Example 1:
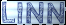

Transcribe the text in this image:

LINN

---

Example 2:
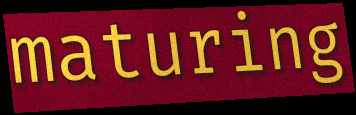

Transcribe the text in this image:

maturing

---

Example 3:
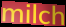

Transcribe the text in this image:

milch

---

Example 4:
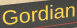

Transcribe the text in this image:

Gordian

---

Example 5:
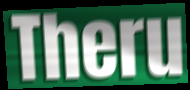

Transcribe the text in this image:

Theru